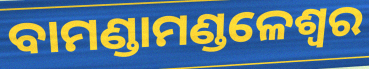
ବାମଣ୍ଡାମଣ୍ଡଳେଶ୍ୱର